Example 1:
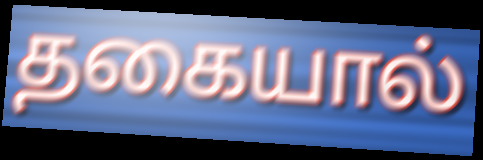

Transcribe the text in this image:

தகையால்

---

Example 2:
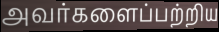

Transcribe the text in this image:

அவர்களைப்பற்றிய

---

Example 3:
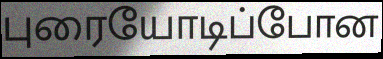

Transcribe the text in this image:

புரையோடிப்போன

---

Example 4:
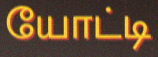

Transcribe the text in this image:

யோட்டி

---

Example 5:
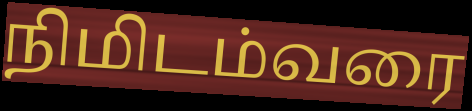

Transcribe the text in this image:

நிமிடம்வரை